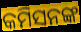
କମିସନଙ୍କ